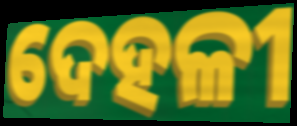
ଦେହଳୀ